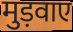
मुड़वाए